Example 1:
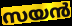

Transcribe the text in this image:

സയൻ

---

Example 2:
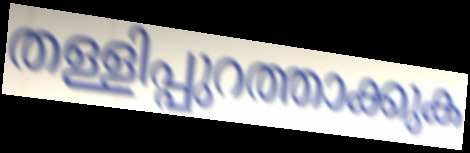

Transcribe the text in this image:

തള്ളിപ്പുറത്താക്കുക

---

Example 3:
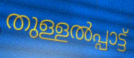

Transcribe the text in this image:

തുള്ളൽപ്പാട്ട്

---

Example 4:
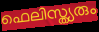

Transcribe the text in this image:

ഫെലിസ്ത്യരും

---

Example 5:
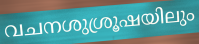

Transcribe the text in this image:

വചനശുശ്രൂഷയിലും